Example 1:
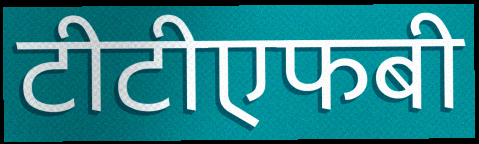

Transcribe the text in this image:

टीटीएफबी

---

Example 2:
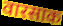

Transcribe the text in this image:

वारसाक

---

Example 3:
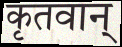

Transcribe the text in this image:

कृतवान्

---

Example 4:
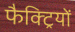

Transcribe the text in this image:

फैक्ट्रियों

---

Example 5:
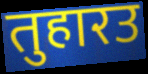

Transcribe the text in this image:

तुहारउ